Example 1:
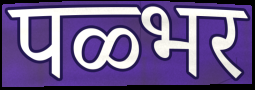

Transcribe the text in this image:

पळ्भर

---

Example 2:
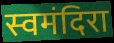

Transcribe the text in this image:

स्वमंदिरा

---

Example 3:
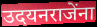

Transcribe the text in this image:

उदयनराजेंना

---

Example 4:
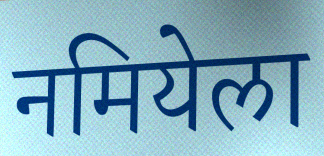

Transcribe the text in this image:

नमियेला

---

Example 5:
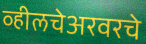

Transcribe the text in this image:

व्हीलचेअरवरचे